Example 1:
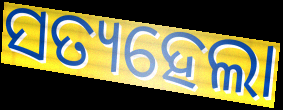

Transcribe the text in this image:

ସତ୍ୟହେଲା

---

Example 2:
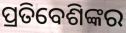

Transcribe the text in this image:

ପ୍ରତିବେଶିଙ୍କର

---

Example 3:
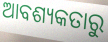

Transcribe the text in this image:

ଆବଶ୍ୟକତାରୁ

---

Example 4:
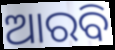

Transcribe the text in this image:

ଆରବି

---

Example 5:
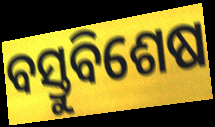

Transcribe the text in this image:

ବସ୍ତୁବିଶେଷ